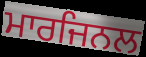
ਮਾਰਜਿਨਲ